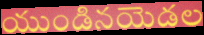
యుండినయెడల